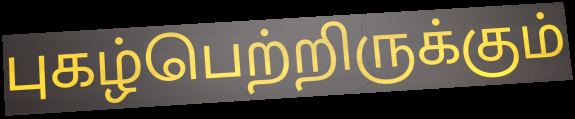
புகழ்பெற்றிருக்கும்